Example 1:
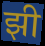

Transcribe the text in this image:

झी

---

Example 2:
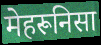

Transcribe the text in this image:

मेहरूनिसा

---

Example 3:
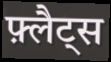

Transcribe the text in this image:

फ़्लैट्स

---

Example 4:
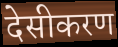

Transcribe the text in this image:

देसीकरण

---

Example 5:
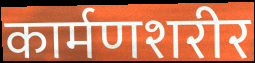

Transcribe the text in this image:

कार्मणशरीर